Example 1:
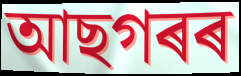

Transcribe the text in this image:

আছগৰৰ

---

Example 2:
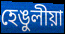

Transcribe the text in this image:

হেঙুলীয়া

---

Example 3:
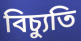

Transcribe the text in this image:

বিচ্যুতি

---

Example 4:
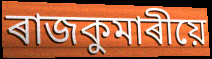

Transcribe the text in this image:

ৰাজকুমাৰীয়ে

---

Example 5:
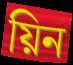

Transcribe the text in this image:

য়িন